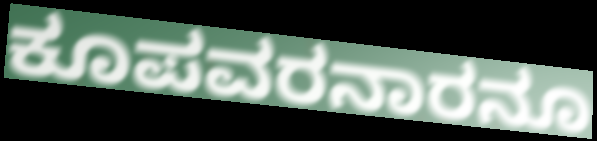
ಕೂಪವರನಾರನೂ